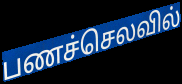
பணச்செலவில்